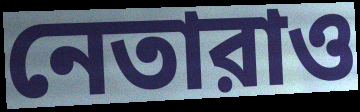
নেতারাও